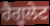
ਰੈਗੂਲੇਟ